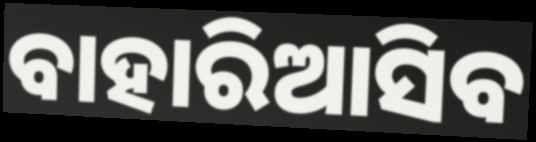
ବାହାରିଆସିବ